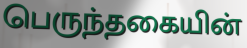
பெருந்தகையின்